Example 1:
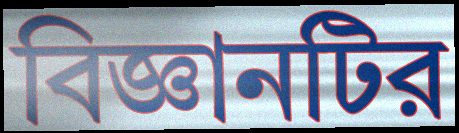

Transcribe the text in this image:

বিজ্ঞানটির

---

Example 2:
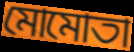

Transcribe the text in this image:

মোমোতা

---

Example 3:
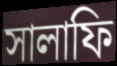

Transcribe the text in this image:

সালাফি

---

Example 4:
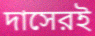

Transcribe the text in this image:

দাসেরই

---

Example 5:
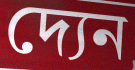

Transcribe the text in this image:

দ্যেন